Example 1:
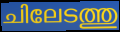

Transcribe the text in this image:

ചിലേടത്തു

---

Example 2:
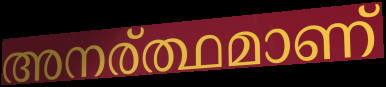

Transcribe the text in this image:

അനര്ത്ഥമാണ്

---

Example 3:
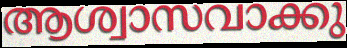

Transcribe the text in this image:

ആശ്വാസവാക്കു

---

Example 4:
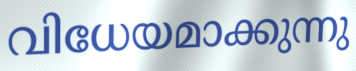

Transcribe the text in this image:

വിധേയമാക്കുന്നു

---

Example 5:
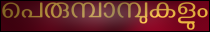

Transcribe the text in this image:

പെരുമ്പാമ്പുകളും